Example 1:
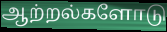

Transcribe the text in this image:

ஆற்றல்களோடு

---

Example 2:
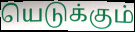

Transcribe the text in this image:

யெடுக்கும்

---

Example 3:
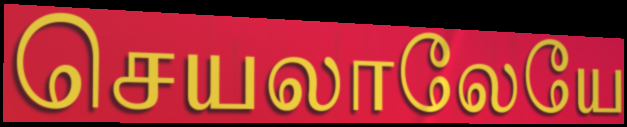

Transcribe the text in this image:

செயலாலேயே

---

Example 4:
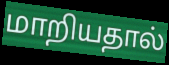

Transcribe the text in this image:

மாறியதால்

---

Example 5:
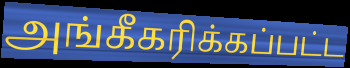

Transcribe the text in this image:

அங்கீகரிக்கப்பட்ட